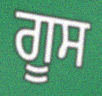
ਗੂਸ